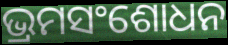
ଭ୍ରମସଂଶୋଧନ